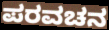
ಪರವಚನ